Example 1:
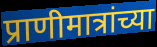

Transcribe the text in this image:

प्राणीमात्रांच्या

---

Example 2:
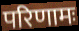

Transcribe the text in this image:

परिणामः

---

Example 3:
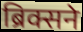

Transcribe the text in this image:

ब्रिक्सने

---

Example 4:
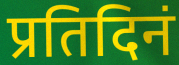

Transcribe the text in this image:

प्रतिदिनं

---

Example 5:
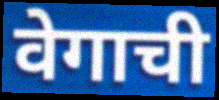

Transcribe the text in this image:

वेगाची